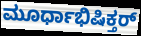
ಮೂರ್ಧಾಭಿಷಿಕ್ತರ್